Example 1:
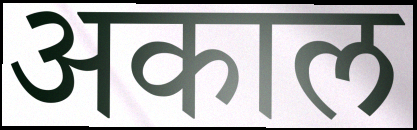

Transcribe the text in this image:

अकाल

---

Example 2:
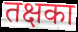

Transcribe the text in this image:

तक्षका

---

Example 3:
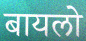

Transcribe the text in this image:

बायलो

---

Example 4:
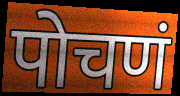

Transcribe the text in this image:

पोचणं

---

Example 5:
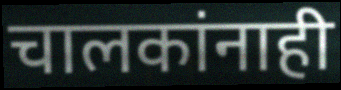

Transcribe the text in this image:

चालकांनाही